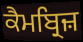
ਕੈਮਬ੍ਰਿਜ਼